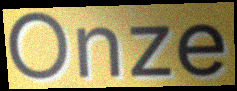
Onze